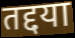
तद्दया